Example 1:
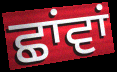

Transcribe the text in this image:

ਛਾਂਵਾਂ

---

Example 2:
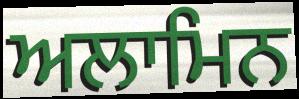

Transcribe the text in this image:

ਅਲਾਮਿਨ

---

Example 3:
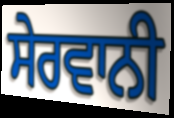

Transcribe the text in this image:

ਸੇਰਵਾਨੀ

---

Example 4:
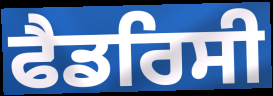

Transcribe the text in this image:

ਫੈਡਰਿਸੀ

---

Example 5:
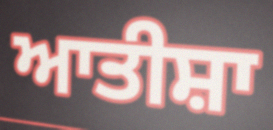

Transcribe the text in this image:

ਆਤੀਸ਼ਾ